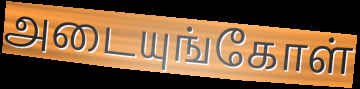
அடையுங்கோள்